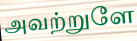
அவற்றுளே